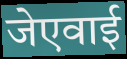
जेएवाई